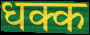
धक्क